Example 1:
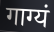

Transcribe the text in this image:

गाग्यं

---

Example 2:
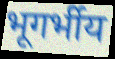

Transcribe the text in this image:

भूगर्भीय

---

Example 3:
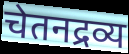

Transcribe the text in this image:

चेतनद्रव्य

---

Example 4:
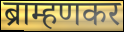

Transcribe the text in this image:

ब्राम्हणकर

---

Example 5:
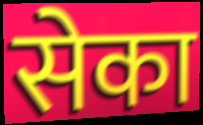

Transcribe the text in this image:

सेका